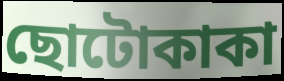
ছোটোকাকা